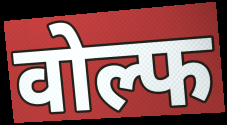
वोल्फ